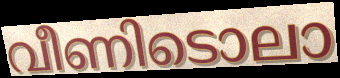
വീണിടൊലാ